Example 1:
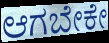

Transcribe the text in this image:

ಆಗಬೇಕೇ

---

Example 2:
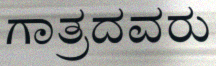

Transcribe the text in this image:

ಗಾತ್ರದವರು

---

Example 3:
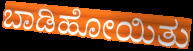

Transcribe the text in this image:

ಬಾಡಿಹೋಯಿತು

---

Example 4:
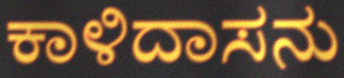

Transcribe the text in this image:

ಕಾಳಿದಾಸನು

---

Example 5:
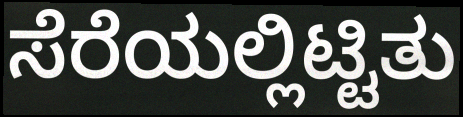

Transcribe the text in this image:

ಸೆರೆಯಲ್ಲಿಟ್ಟಿತು